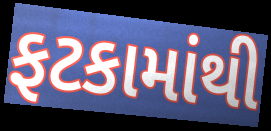
ફટકામાંથી